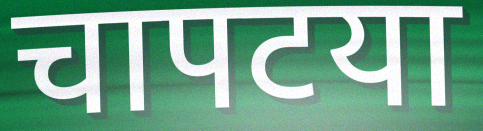
चापटया